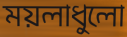
ময়লাধুলো